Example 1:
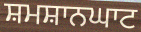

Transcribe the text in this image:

ਸ਼ਮਸ਼ਾਨਘਾਟ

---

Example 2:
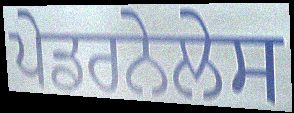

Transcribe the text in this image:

ਪੇਡਰਨੇਲੇਸ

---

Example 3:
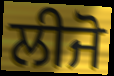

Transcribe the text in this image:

ਲੀਜੋ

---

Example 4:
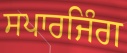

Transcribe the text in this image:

ਸਪਾਰਜਿੰਗ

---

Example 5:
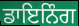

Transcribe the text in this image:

ਡਾਇਨਿੰਗ